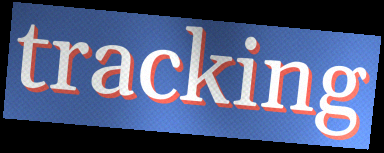
tracking